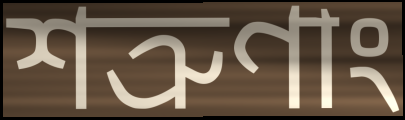
শত্রুণাং